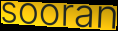
sooran